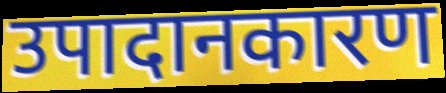
उपादानकारण